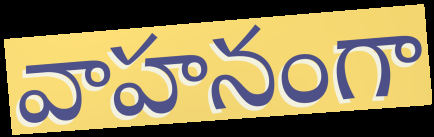
వాహనంగా